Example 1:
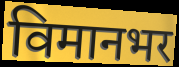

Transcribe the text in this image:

विमानभर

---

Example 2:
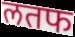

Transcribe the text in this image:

लतफ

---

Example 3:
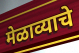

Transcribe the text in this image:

मेळाव्याचे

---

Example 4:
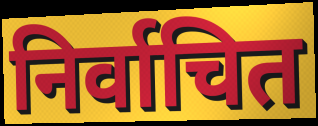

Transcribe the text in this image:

निर्वाचित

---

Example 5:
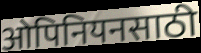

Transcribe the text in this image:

ओपिनियनसाठी